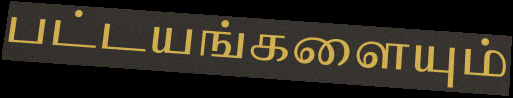
பட்டயங்களையும்